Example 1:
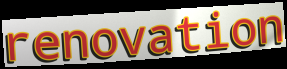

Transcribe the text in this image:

renovation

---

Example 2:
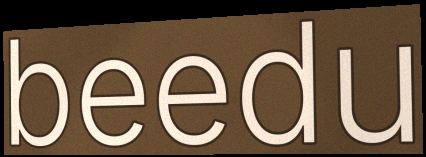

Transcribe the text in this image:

beedu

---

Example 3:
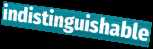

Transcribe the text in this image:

indistinguishable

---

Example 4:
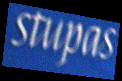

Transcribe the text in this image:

stupas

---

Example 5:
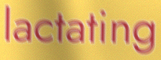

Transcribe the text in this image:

lactating